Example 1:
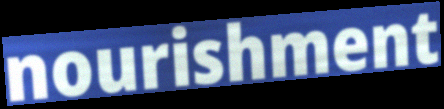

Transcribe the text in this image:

nourishment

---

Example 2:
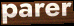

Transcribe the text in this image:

parer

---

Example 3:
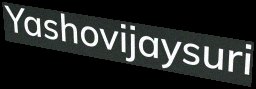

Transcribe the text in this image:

Yashovijaysuri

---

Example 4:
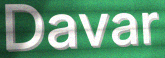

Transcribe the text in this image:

Davar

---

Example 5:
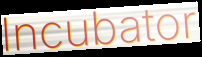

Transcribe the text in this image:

Incubator